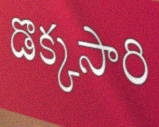
డొక్కసారి